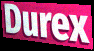
Durex